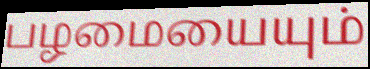
பழமையையும்